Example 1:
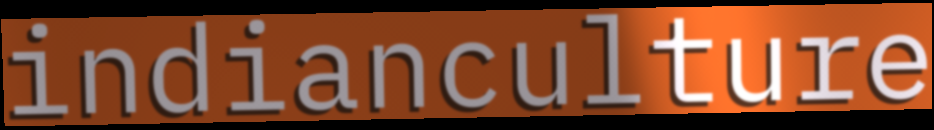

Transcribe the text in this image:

indianculture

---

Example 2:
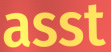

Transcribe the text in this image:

asst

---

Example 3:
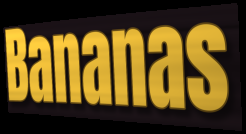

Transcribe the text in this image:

Bananas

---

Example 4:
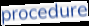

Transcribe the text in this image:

procedure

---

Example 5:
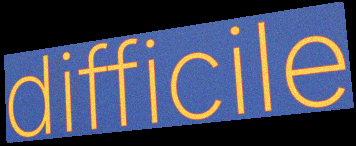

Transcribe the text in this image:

difficile